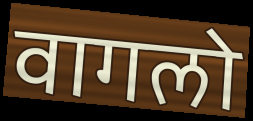
वागलो